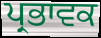
ਪ੍ਰਭਾਵਕ